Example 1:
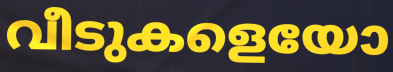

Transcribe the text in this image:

വീടുകളെയോ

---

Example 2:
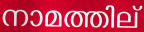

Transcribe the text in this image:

നാമത്തില്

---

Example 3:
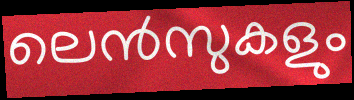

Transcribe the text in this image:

ലെൻസുകളും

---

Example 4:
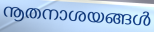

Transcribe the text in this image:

നൂതനാശയങ്ങൾ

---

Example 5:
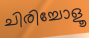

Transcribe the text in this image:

ചിരിച്ചോളൂ